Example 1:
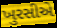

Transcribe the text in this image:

ખુરસીએ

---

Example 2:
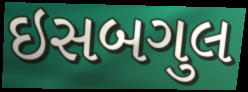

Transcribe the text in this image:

ઇસબગુલ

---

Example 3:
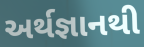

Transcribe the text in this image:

અર્થજ્ઞાનથી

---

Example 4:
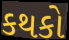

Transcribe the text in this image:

કથકો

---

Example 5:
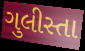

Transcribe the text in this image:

ગુલીસ્તા